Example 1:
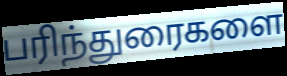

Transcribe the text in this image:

பரிந்துரைகளை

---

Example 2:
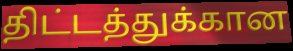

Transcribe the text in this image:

திட்டத்துக்கான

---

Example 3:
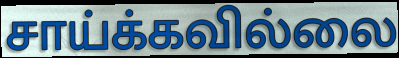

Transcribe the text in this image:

சாய்க்கவில்லை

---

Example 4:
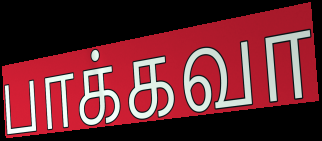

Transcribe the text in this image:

பாக்கவா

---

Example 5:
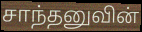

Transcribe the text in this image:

சாந்தனுவின்